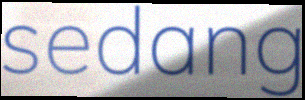
sedang